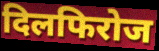
दिलफिरोज